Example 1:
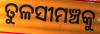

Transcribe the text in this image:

ତୁଳସୀମଞ୍ଚକୁ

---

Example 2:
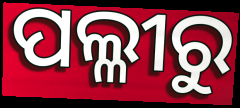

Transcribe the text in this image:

ପଲ୍ଳୀରୁ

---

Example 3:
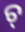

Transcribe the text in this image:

ଚ୍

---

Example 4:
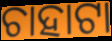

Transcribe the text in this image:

ଚାହାଟା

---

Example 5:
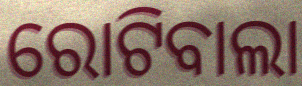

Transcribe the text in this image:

ରୋଟିବାଲା